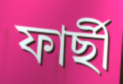
ফাৰ্ছী